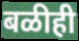
बळीही